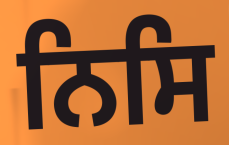
ਨਿਸਿ